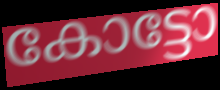
കോട്ടോ